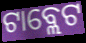
ଟାବ୍ଲେଟ